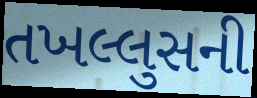
તખલ્લુસની